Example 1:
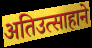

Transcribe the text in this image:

अतिउत्साहाने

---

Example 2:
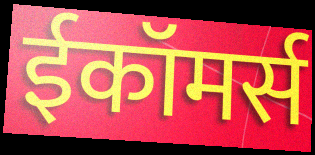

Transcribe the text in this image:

ईकॉमर्स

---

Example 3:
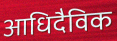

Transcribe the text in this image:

आधिदैविक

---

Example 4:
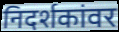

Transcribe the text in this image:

निदर्शकांवर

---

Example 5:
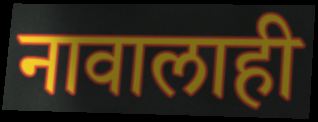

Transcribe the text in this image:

नावालाही